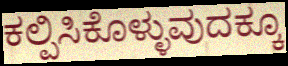
ಕಲ್ಪಿಸಿಕೊಳ್ಳುವುದಕ್ಕೂ